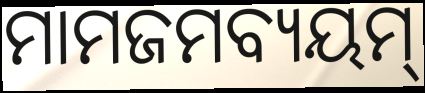
ମାମଜମବ୍ୟୟମ୍